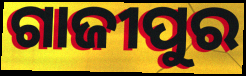
ଗାଜୀପୁର